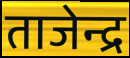
ताजेन्द्र